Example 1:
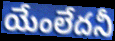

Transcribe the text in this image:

యేంలేదనీ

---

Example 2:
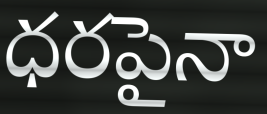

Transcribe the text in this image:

ధరపైనా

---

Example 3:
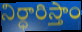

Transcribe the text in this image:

నిర్ధారిస్తాం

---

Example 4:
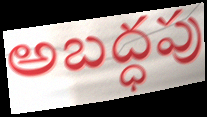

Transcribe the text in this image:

అబద్ధపు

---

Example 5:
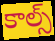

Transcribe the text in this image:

కాల్స్